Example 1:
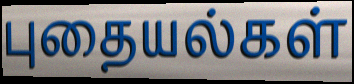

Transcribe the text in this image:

புதையல்கள்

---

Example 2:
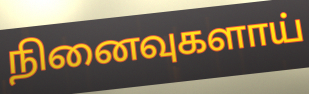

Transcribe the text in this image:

நினைவுகளாய்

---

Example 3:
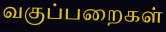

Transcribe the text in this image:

வகுப்பறைகள்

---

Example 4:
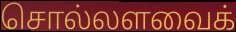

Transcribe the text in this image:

சொல்லளவைக்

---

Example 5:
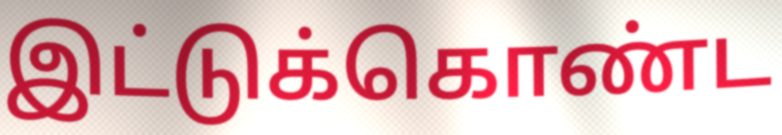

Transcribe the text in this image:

இட்டுக்கொண்ட